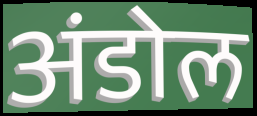
अंडोल